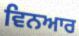
ਵਿਨਆਰ